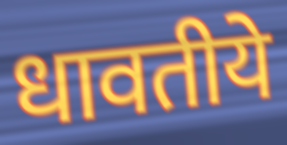
धावतीये